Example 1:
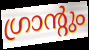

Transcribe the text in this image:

ഗ്രാന്റും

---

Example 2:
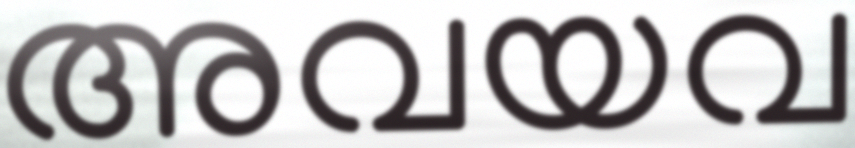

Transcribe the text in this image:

അവയവ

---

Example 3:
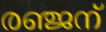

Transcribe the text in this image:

രഞ്ജന്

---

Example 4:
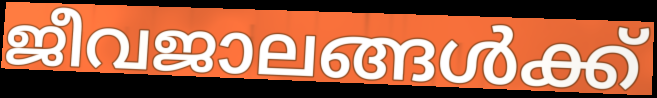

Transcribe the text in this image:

ജീവജാലങ്ങൾക്ക്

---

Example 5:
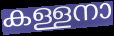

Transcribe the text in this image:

കള്ളനാ